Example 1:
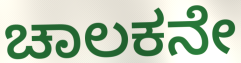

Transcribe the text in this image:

ಚಾಲಕನೇ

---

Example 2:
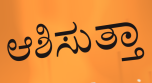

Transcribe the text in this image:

ಆಶಿಸುತ್ತಾ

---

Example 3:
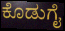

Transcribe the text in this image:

ಕೊಡುಗೈ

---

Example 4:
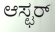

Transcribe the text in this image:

ಆಸ್ಟರ್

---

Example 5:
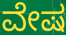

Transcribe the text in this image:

ವೇಷ